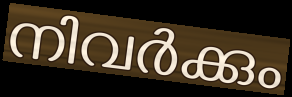
നിവർക്കും